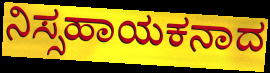
ನಿಸ್ಸಹಾಯಕನಾದ